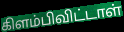
கிளம்பிவிட்டாள்